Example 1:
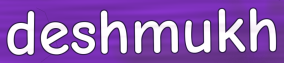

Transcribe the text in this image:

deshmukh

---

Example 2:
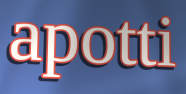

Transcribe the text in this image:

apotti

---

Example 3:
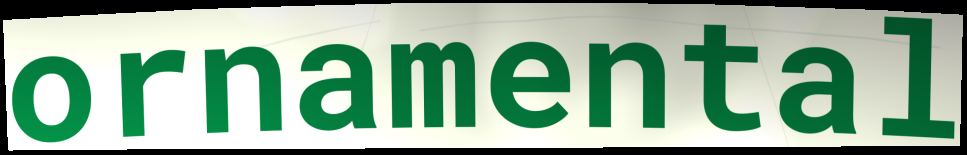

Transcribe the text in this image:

ornamental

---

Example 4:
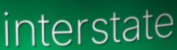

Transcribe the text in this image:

interstate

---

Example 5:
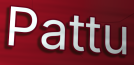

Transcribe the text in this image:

Pattu